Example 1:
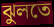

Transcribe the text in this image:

ঝুলতে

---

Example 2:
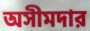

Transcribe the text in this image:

অসীমদার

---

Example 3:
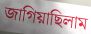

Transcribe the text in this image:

জাগিয়াছিলাম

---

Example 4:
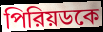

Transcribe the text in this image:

পিরিয়ডকে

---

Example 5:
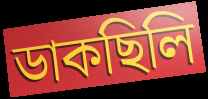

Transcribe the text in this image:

ডাকছিলি